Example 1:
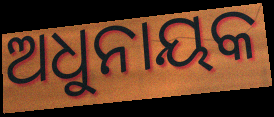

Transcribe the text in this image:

ଅଧୁନାୟକ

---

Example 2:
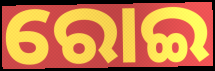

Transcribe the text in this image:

ରୋଇ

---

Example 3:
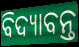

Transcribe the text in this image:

ବିଦ୍ୟାବନ୍ତ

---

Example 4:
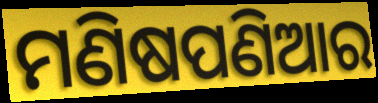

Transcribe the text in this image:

ମଣିଷପଣିଆର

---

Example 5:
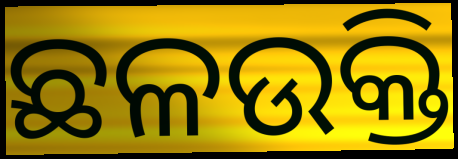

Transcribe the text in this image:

ଛଳଉକ୍ତି